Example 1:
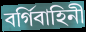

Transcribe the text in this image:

বর্গিবাহিনী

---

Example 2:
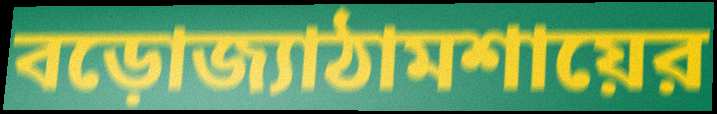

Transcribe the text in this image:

বড়োজ্যাঠামশায়ের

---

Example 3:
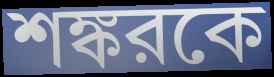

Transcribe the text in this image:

শঙ্করকে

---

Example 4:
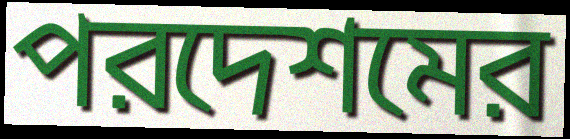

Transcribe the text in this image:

পরদেশমের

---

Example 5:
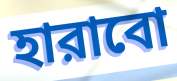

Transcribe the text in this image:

হারাবো